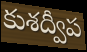
కుశద్వీప